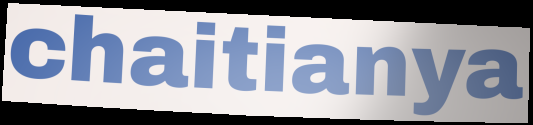
chaitianya